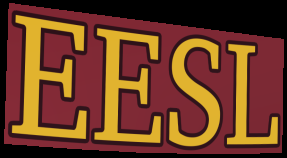
EESL